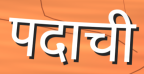
पदाची